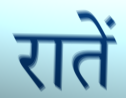
रातें